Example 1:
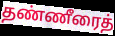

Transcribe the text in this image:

தண்ணீரைத்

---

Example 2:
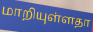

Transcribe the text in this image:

மாறியுள்ளதா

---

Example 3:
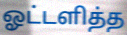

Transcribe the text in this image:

ஓட்டளித்த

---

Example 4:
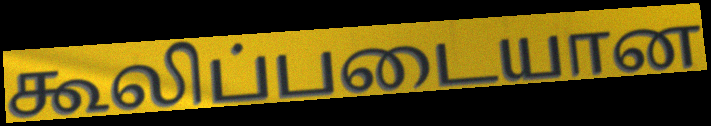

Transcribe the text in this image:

கூலிப்படையான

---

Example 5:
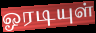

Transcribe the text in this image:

ஓரடியுள்